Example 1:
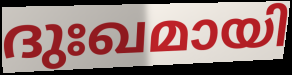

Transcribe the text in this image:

ദുഃഖമായി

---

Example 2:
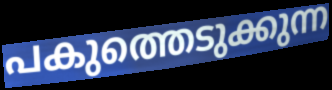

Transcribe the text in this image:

പകുത്തെടുക്കുന്ന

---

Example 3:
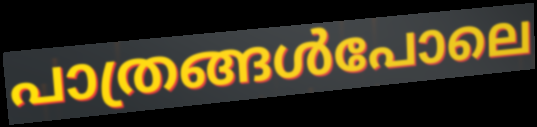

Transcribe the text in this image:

പാത്രങ്ങൾപോലെ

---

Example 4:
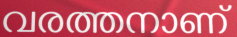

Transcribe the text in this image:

വരത്തനാണ്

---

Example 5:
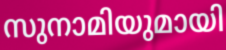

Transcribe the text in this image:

സുനാമിയുമായി